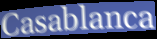
Casablanca